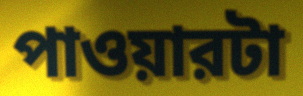
পাওয়ারটা